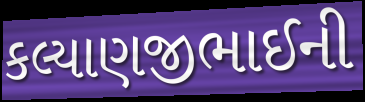
કલ્યાણજીભાઈની